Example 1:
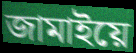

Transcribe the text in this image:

জামাইয়ে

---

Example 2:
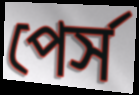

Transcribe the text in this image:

পের্স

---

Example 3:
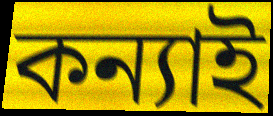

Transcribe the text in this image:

কন্যাই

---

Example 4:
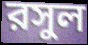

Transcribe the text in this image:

রসুল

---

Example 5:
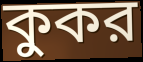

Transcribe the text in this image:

কুকর